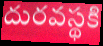
దురవస్థకి